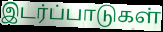
இடர்ப்பாடுகள்